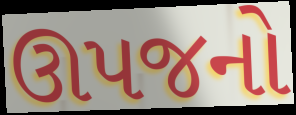
ઊપજનો